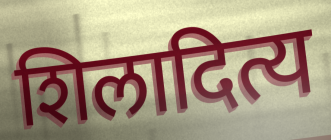
शिलादित्य